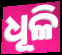
ଧୂଳି